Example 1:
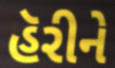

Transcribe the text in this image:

હૅરીને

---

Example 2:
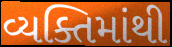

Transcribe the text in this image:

વ્યક્તિમાંથી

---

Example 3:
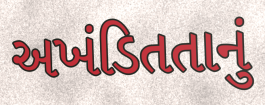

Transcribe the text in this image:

અખંડિતતાનું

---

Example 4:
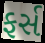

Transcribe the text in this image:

ફર્સ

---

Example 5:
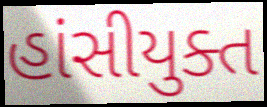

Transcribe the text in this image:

હાંસીયુક્ત